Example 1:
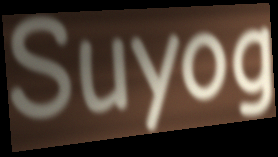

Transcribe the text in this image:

Suyog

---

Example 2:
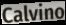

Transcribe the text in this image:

Calvino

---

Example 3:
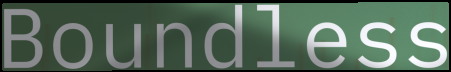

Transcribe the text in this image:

Boundless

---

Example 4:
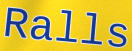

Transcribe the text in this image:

Ralls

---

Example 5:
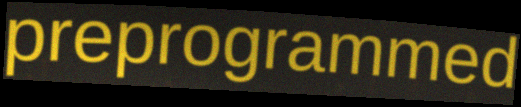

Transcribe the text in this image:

preprogrammed